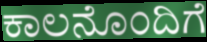
ಕಾಲನೊಂದಿಗೆ